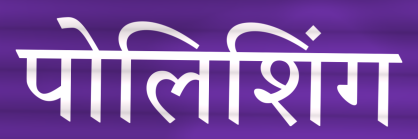
पोलिशिंग